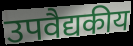
उपवैद्यकीय